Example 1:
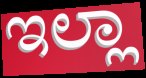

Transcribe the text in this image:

ಇಲ್ಲಾ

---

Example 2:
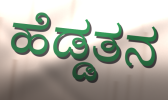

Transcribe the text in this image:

ಹೆಡ್ಡತನ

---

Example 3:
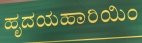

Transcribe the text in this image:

ಹೃದಯಹಾರಿಯಿಂ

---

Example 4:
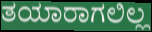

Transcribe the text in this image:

ತಯಾರಾಗಲಿಲ್ಲ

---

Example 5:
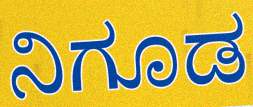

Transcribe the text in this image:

ನಿಗೂಡ